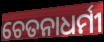
ଚେତନାଧର୍ମୀ